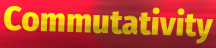
Commutativity